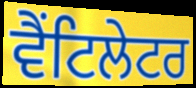
ਵੈਂਟਿਲੇਟਰ